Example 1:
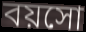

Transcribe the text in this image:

বয়সো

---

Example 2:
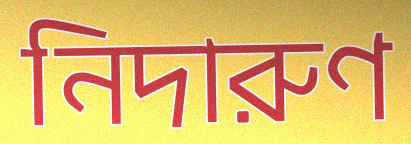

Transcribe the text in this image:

নিদাৰুণ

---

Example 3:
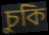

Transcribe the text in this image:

চুকি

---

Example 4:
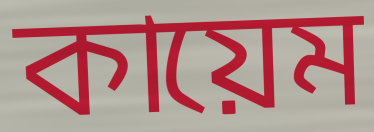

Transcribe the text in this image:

কায়েম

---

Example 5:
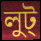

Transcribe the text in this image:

লুট্